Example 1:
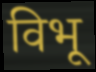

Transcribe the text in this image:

विभू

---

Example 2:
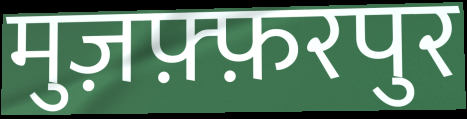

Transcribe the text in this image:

मुज़फ़्फ़रपुर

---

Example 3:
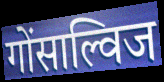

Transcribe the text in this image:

गोंसाल्विज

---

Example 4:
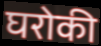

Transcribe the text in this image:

घरोकी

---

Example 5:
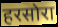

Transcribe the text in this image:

हरसोरा